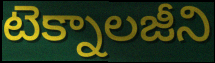
టెక్నాలజీని